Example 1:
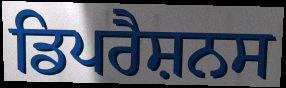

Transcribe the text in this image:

ਡਿਪਰੈਸ਼ਨਸ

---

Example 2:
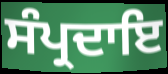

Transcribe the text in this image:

ਸੰਪ੍ਰਦਾਇ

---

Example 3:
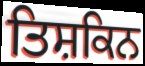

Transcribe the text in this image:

ਤਿਸ਼ਕਿਨ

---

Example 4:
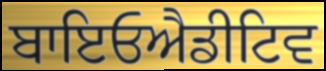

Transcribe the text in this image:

ਬਾਇਓਐਡੀਟਿਵ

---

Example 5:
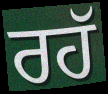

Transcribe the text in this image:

ਰਹੱ